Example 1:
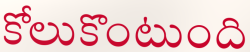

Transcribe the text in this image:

కోలుకొంటుంది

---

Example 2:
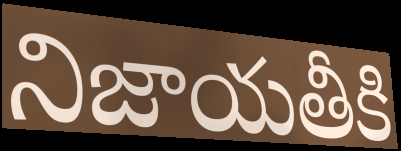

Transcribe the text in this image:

నిజాయతీకి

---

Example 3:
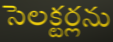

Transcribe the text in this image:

సెలక్టర్లను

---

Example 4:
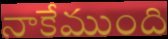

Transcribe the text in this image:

నాకేముంది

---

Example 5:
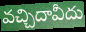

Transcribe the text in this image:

వచ్చిదావీదు